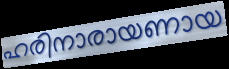
ഹരിനാരായണായ